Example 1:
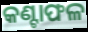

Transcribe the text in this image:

କଣ୍ଟାଫଳ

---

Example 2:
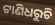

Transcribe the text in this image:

ଟାଣିଧରୁଚି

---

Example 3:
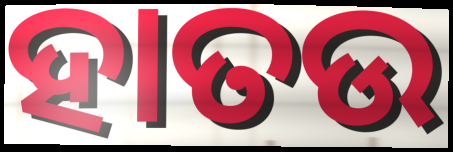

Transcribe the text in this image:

ହାତଉ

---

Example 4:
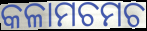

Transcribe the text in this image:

କଳାମଚମଚ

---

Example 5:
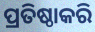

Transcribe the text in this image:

ପ୍ରତିଷ୍ଠାକରି